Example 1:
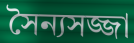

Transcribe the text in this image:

সৈন্যসজ্জা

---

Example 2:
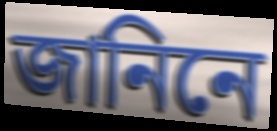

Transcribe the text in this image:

জানিনে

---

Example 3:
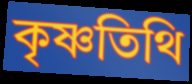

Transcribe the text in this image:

কৃষ্ণতিথি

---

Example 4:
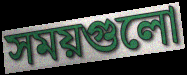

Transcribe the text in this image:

সময়গুলো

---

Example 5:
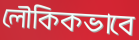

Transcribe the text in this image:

লৌকিকভাবে